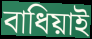
বাধিয়াই